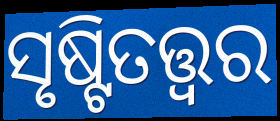
ସୃଷ୍ଟିତତ୍ତ୍ୱର